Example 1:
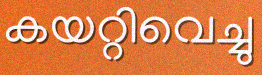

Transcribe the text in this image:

കയറ്റിവെച്ചു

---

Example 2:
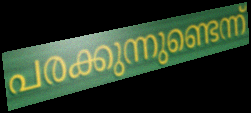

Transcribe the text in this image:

പരക്കുന്നുണ്ടെന്ന്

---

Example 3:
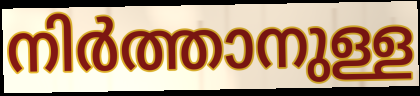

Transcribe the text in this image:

നിർത്താനുള്ള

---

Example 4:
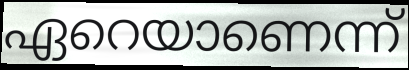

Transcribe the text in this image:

ഏറെയാണെന്ന്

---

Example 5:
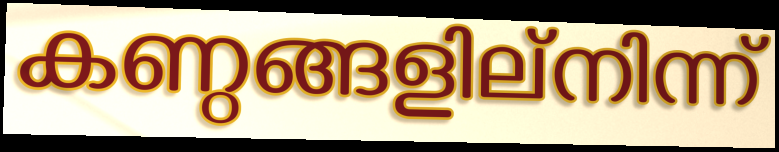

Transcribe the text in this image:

കണ്ഠങ്ങളില്നിന്ന്